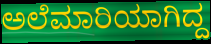
ಅಲೆಮಾರಿಯಾಗಿದ್ದ